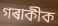
গৰাকীক